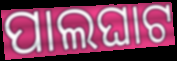
ପାଲଘାଟ